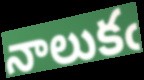
నాలుకఁ